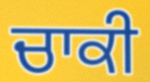
ਚਾਕੀ